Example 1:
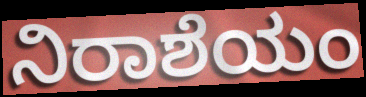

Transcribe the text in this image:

ನಿರಾಶೆಯಂ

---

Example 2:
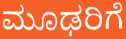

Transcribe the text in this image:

ಮೂಢರಿಗೆ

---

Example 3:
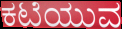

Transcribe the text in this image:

ಕಟೆಯುವ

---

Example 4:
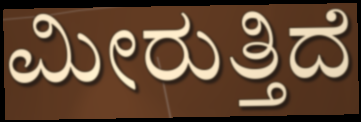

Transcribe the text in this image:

ಮೀರುತ್ತಿದೆ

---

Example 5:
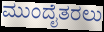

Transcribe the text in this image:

ಮುಂದೈತರಲು